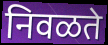
निवळते